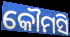
କୌମସି